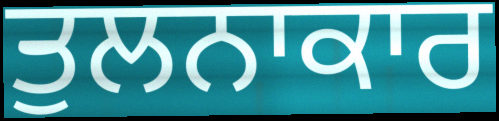
ਤੁਲਨਾਕਾਰ